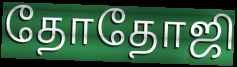
தோதோஜி